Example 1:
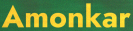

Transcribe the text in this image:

Amonkar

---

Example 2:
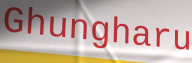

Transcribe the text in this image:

Ghungharu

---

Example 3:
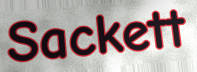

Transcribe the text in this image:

Sackett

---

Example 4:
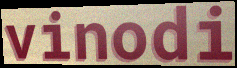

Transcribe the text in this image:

vinodi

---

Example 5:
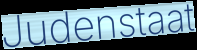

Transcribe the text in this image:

Judenstaat